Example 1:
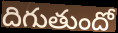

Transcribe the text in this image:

దిగుతుందో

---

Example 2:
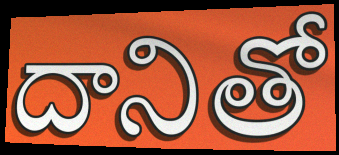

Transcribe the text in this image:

దానితో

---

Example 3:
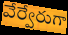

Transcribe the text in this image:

వేర్వేరుగా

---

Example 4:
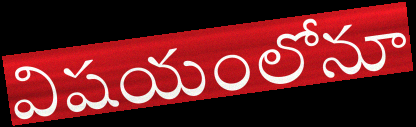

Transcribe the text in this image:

విషయంలోనూ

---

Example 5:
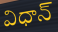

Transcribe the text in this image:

విధాన్